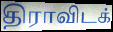
திராவிடக்